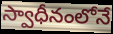
స్వాధీనంలోనే